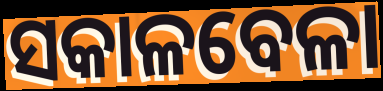
ସକାଳବେଳା